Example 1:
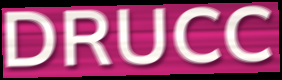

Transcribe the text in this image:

DRUCC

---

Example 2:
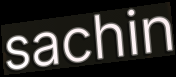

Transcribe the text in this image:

sachin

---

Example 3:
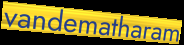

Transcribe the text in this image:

vandematharam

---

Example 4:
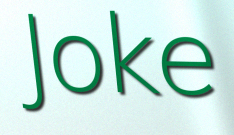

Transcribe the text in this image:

Joke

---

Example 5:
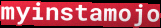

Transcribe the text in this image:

myinstamojo